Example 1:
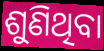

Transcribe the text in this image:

ଶୁଣିଥିବା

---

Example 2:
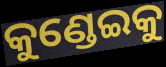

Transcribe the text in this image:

କୁଣ୍ଡେଇକୁ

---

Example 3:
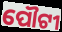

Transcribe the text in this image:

ପୌଟୀ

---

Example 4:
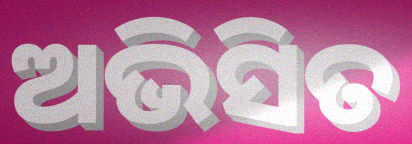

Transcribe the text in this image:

ଅଭିସିତ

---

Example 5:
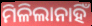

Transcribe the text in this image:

ମିଳିଲାନାହିଁ